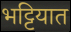
भट्टियात